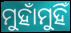
ମୁହାଁମୁହିଁ